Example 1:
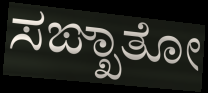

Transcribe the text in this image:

ಸಙ್ಖಾತೋ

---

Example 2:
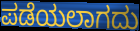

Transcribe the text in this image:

ಪಡೆಯಲಾಗದು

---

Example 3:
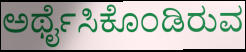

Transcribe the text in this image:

ಅರ್ಥೈಸಿಕೊಂಡಿರುವ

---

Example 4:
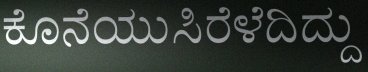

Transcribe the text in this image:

ಕೊನೆಯುಸಿರೆಳೆದಿದ್ದು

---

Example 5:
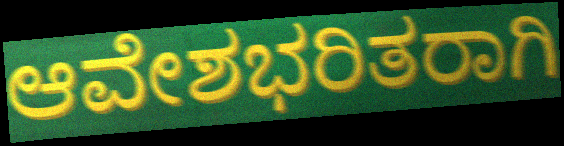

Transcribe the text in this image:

ಆವೇಶಭರಿತರಾಗಿ